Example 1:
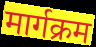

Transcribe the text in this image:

मार्गक्रम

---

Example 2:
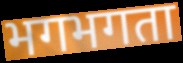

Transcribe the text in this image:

भगभगता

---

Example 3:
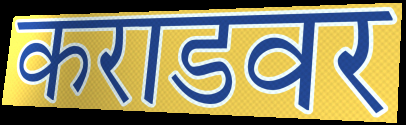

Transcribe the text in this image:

कराडवर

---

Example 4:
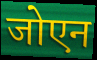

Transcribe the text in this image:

जोएन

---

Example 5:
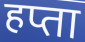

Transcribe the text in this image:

हप्ता